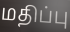
மதிப்பு